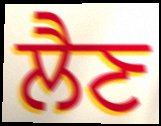
ਲੈਣ